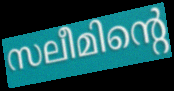
സലീമിന്റെ